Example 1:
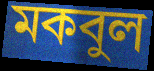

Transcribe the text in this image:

মকবুল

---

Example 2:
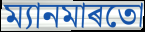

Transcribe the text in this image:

ম্যানমাৰতো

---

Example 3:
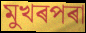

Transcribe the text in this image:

মুখৰপৰা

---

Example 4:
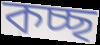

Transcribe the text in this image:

কচ্ছ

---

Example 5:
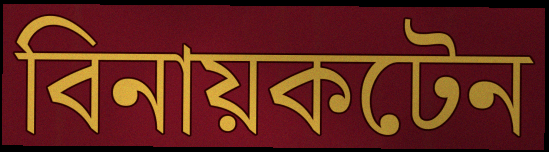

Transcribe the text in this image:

বিনায়কটেন